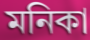
মনিকা